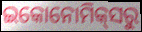
ଇକୋନୋମିକ୍‌ସରୁ